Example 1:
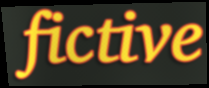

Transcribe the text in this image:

fictive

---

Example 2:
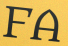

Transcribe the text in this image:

FA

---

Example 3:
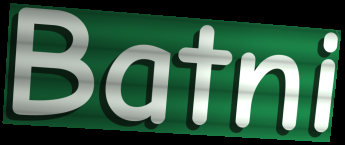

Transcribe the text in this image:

Batni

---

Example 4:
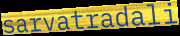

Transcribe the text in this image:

sarvatradali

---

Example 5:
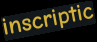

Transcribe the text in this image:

inscriptic